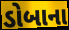
ડોબાના